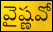
వైష్ణవో